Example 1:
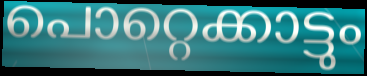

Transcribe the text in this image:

പൊറ്റെക്കാട്ടും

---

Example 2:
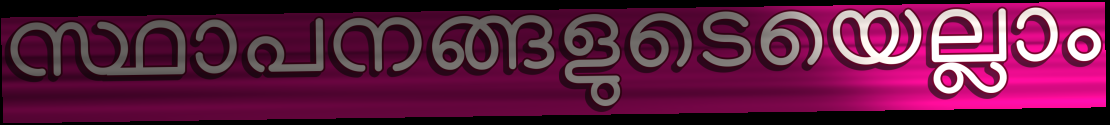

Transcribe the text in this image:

സ്ഥാപനങ്ങളുടെയെല്ലാം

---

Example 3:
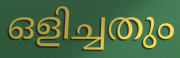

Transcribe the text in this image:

ഒളിച്ചതും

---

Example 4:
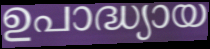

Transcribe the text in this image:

ഉപാദ്ധ്യായ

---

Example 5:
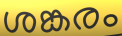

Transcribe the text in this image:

ശങ്കരം